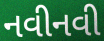
નવીનવી